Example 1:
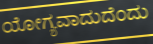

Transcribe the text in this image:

ಯೋಗ್ಯವಾದುದೆಂದು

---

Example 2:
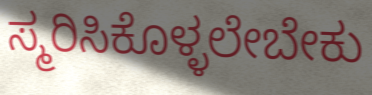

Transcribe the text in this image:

ಸ್ಮರಿಸಿಕೊಳ್ಳಲೇಬೇಕು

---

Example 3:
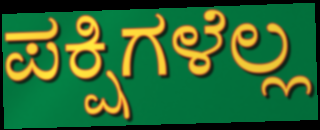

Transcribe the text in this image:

ಪಕ್ಷಿಗಳೆಲ್ಲ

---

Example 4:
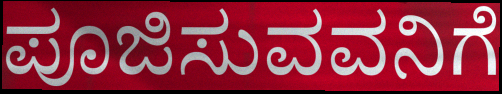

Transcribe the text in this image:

ಪೂಜಿಸುವವನಿಗೆ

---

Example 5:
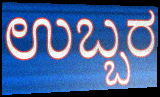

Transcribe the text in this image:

ಉಬ್ಬರ